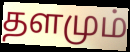
தளமும்